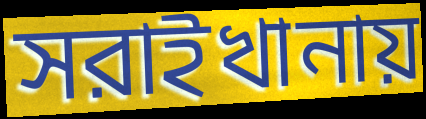
সরাইখানায়